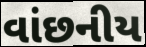
વાંછનીય